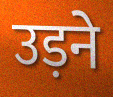
उड़ने